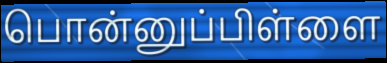
பொன்னுப்பிள்ளை